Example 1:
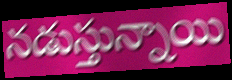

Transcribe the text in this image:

నడుస్తున్నాయి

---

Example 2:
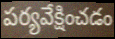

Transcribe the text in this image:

పర్యవేక్షించడం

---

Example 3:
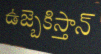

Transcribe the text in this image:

ఉజ్బెకిస్తాన్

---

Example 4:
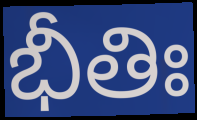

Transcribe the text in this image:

భీతిః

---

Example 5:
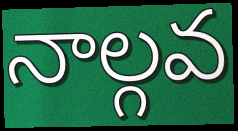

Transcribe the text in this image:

నాల్గవ